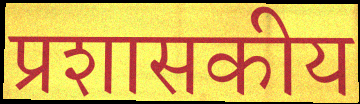
प्रशासकीय